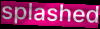
splashed